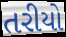
તરીયો